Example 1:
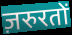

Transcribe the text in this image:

ज़रुरतों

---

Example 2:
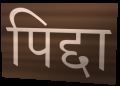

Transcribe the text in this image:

पिद्दा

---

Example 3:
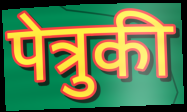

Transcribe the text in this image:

पेत्रुकी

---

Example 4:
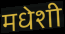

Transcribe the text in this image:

मधेशी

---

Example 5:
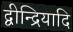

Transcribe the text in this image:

द्वीन्द्रियादि